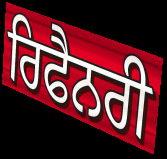
ਰਿਫੈਨਰੀ